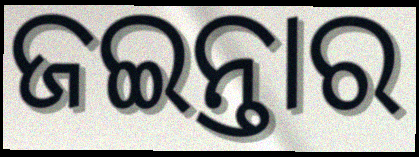
ଜଇନ୍ତାର